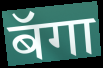
बॅगा